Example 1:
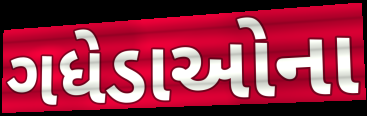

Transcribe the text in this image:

ગધેડાઓના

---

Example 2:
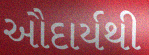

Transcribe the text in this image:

ઔદાર્યથી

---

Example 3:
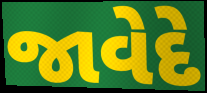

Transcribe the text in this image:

જાવેદે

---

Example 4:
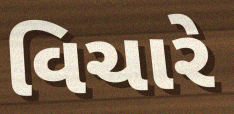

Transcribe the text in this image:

વિચારે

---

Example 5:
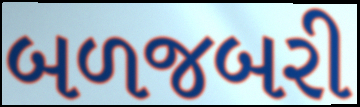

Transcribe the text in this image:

બળજબરી